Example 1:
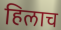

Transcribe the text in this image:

हिलाच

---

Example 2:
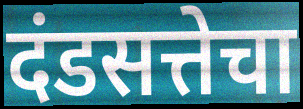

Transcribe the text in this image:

दंडसत्तेचा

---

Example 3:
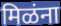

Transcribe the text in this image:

मिळंना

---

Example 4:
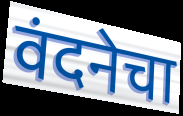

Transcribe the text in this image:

वंदनेचा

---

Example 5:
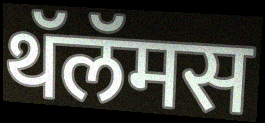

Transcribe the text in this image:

थॅलॅमस